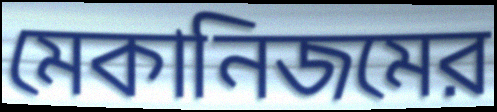
মেকানিজমের